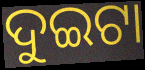
ଦୁଇଟା